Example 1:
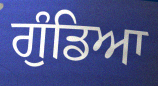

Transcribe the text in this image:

ਗੁੰਡਿਆ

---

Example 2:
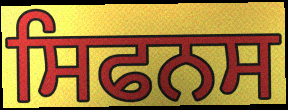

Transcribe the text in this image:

ਸਿਫਨਸ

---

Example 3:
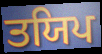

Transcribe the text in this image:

ਤਯਿਪ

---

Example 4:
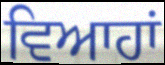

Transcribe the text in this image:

ਵਿਆਹਾਂ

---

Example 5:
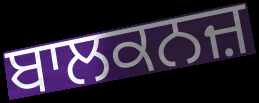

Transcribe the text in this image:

ਬਾਲਕਨਜ਼